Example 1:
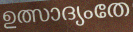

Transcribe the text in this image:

ഉത്സാദ്യംതേ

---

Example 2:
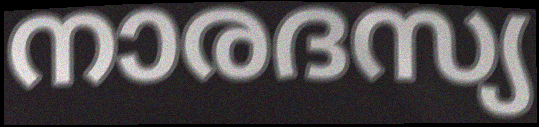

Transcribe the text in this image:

നാരദസ്യ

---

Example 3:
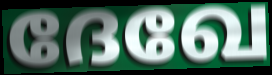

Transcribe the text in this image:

ദേഖേ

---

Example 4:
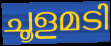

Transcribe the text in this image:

ചൂളമടി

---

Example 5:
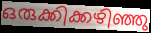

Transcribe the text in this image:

ഒരുക്കിക്കഴിഞ്ഞു